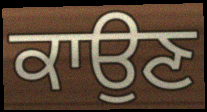
ਕਾਉਣ